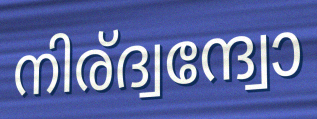
നിര്ദ്വന്ദ്വോ